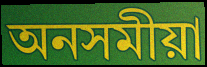
অনসমীয়া